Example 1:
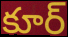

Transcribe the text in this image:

కూర్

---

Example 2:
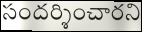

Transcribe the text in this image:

సందర్శించారని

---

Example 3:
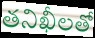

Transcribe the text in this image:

తనిఖీలతో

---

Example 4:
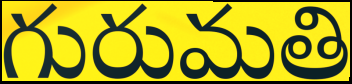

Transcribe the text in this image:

గురుమతి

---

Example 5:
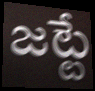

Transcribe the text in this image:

జట్టే